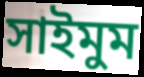
সাইমুম